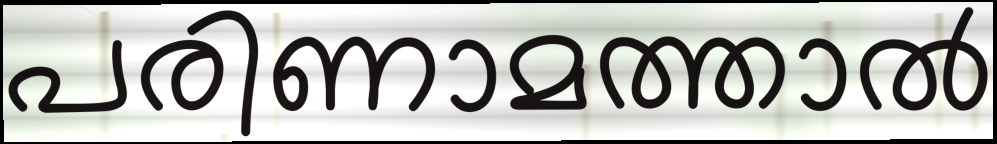
പരിണാമത്താൽ